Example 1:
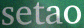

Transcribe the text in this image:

setao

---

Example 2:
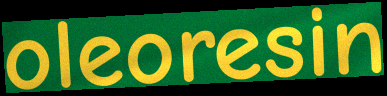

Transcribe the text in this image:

oleoresin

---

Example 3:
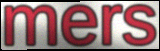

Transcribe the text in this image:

mers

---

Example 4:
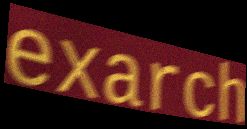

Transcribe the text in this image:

exarch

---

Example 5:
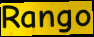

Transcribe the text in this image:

Rango